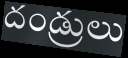
దండ్రులు